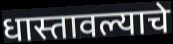
धास्तावल्याचे